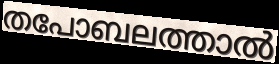
തപോബലത്താൽ